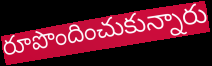
రూపొందించుకున్నారు